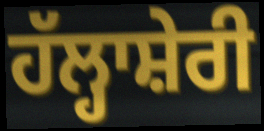
ਹੱਲ੍ਹਾਸ਼ੇਰੀ